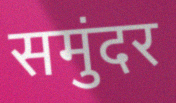
समुंदर